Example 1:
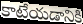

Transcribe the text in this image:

కాటేయడానికి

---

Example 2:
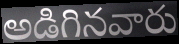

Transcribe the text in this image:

అడిగినవారు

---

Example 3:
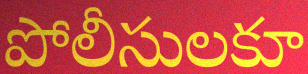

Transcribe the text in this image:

పోలీసులకూ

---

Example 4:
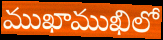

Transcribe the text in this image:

ముఖాముఖిలో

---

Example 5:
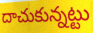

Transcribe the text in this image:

దాచుకున్నట్టు